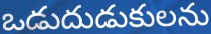
ఒడుదుడుకులను